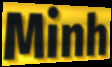
Minh